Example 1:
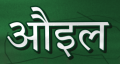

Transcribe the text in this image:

औइल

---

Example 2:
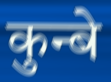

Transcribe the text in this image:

कुन्बे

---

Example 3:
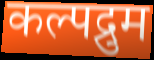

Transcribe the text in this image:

कल्पद्रुम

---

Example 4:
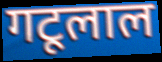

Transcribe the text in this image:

गटूलाल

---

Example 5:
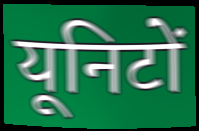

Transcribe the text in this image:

यूनिटों